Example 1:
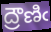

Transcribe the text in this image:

ద్రౌణిఁ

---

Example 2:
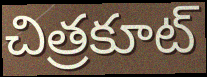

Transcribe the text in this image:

చిత్రకూట్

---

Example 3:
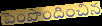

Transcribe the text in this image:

పెంపొందించిన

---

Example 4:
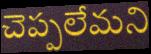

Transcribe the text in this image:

చెప్పలేమని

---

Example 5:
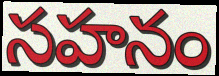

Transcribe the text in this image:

సహనం